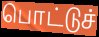
பொட்டுச்